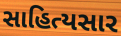
સાહિત્યસાર